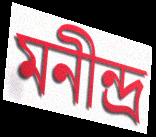
মনীন্দ্র